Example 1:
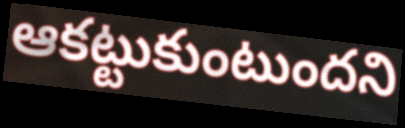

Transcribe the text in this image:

ఆకట్టుకుంటుందని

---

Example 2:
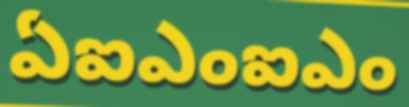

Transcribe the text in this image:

ఏఐఎంఐఎం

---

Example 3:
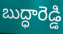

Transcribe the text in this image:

బుద్ధారెడ్డి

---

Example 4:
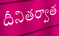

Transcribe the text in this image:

దీనితర్వాత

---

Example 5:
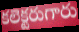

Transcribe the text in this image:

కలెక్టరుగారు